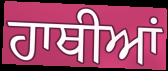
ਹਾਥੀਆਂ